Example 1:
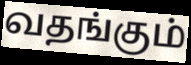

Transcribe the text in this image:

வதங்கும்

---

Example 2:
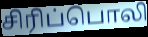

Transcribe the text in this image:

சிரிப்பொலி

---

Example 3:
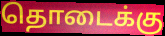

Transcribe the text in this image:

தொடைக்கு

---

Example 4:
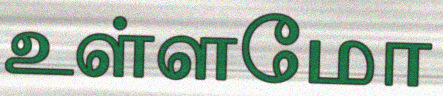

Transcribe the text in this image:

உள்ளமோ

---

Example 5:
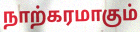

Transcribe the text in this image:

நாற்கரமாகும்